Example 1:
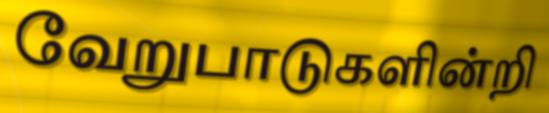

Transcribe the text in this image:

வேறுபாடுகளின்றி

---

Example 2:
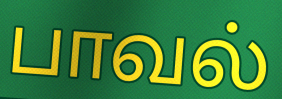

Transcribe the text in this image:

பாவல்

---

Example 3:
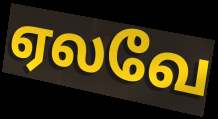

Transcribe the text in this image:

ஏலவே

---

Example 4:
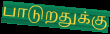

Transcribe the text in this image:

பாடுறதுக்கு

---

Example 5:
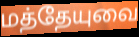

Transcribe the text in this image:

மத்தேயுவை